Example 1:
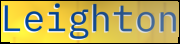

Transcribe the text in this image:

Leighton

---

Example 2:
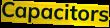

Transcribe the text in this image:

Capacitors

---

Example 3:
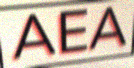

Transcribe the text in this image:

AEA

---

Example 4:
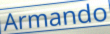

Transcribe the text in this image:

Armando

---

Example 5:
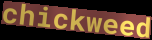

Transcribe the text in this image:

chickweed